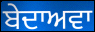
ਬੇਦਾਅਵਾ